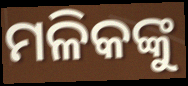
ମଳିକଙ୍କୁ